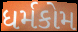
ધર્મકોમ